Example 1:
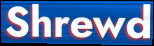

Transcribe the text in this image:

Shrewd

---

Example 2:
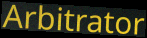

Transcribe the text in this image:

Arbitrator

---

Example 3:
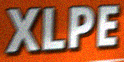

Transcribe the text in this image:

XLPE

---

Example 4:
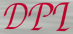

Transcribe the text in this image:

DPI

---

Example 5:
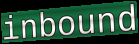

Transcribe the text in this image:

inbound